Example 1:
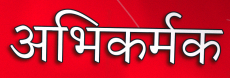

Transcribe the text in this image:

अभिकर्मक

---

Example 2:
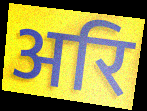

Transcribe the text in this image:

अरि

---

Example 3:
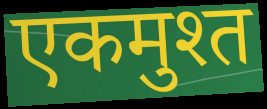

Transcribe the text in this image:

एकमुश्त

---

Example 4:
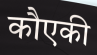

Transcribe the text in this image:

कौएकी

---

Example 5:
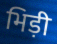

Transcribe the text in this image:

भिड़ी